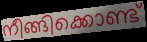
നീങ്ങിക്കൊണ്ട്